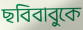
ছবিবাবুকে